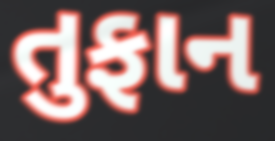
તુફાન